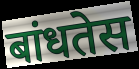
बांधतेस